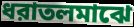
ধরাতলমাঝে